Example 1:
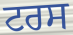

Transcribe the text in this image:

ਟਰਸ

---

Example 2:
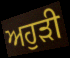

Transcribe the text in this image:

ਅਹੁੜੀ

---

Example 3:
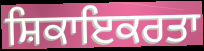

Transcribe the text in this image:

ਸ਼ਿਕਾਇਕਰਤਾ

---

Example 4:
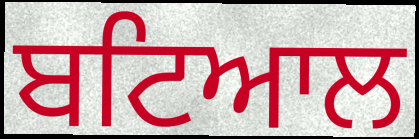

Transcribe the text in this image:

ਬਟਿਆਲ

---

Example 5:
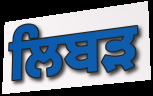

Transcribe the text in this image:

ਲਿਬੜ